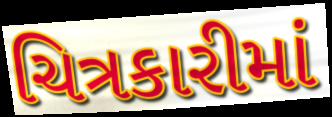
ચિત્રકારીમાં